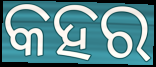
କହର